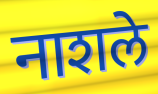
नाशले